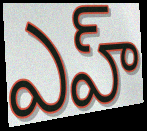
ఎహ్